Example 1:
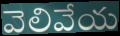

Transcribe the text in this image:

వెలివేయ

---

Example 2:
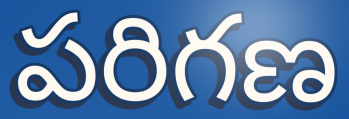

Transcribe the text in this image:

పరిగణ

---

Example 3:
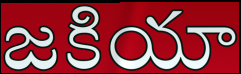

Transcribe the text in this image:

జకియా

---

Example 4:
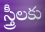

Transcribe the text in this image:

స్త్రీలకు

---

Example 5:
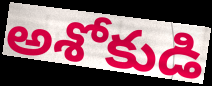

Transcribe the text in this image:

అశోకుడి